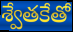
శ్వేతకేతో